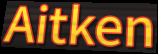
Aitken